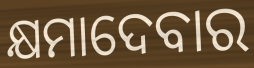
କ୍ଷମାଦେବାର